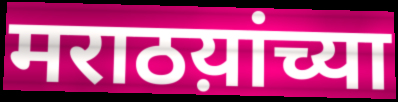
मराठय़ांच्या